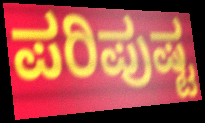
ಪರಿಪುಷ್ಟ